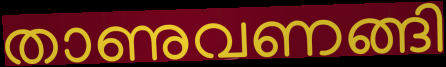
താണുവണങ്ങി